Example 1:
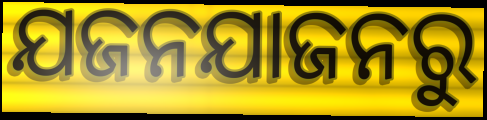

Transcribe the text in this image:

ଯଜନଯାଜନରୁ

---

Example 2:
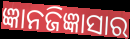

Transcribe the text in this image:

ଜ୍ଞାନଜିଜ୍ଞାସାର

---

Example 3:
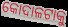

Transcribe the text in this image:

କୋଦାଳଟାକୁ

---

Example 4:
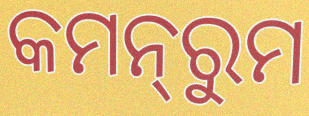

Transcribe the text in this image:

କମନ୍‌ରୁମ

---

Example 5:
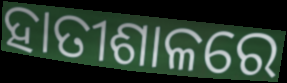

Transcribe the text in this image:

ହାତୀଶାଳରେ